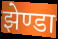
झेण्डा